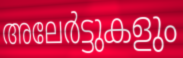
അലേർട്ടുകളും